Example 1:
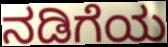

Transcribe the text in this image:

ನಡಿಗೆಯ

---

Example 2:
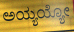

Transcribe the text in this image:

ಅಯ್ಯಯ್ಯೋ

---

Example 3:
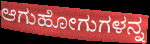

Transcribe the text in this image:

ಆಗುಹೋಗುಗಳನ್ನ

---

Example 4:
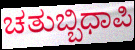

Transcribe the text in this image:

ಚತುಬ್ಬಿಧಾಪಿ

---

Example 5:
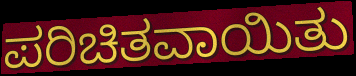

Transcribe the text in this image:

ಪರಿಚಿತವಾಯಿತು